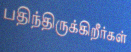
பதிந்திருக்கிறீர்கள்